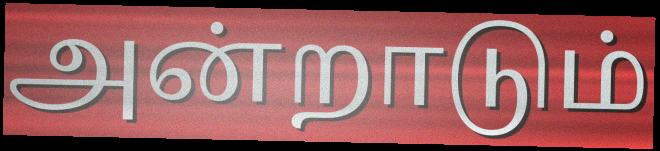
அன்றாடும்